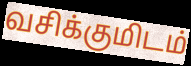
வசிக்குமிடம்